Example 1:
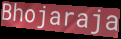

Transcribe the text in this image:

Bhojaraja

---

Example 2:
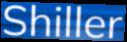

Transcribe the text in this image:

Shiller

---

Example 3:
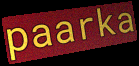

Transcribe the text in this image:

paarka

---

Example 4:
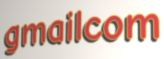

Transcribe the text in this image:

gmailcom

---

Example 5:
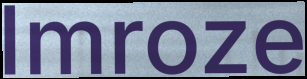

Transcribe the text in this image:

Imroze